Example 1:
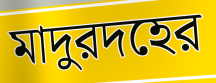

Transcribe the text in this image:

মাদুরদহের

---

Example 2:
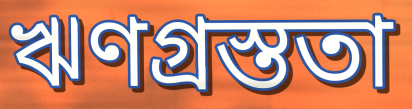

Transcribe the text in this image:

ঋণগ্রস্ততা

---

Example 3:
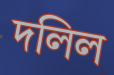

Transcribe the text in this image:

দলিল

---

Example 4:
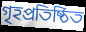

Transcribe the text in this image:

গৃহপ্রতিষ্ঠিত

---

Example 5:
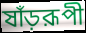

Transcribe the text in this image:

ষাঁড়রূপী